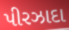
પીરઝાદા